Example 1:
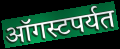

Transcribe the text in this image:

ऑगस्टपर्यत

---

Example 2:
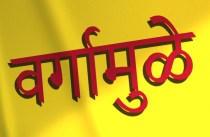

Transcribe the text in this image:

वर्गामुळे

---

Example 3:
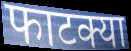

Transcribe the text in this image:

फाटक्या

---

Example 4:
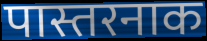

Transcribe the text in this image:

पास्तरनाक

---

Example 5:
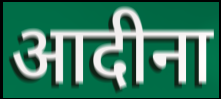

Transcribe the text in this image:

आदीना